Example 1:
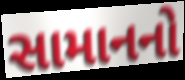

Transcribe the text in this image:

સામાનનો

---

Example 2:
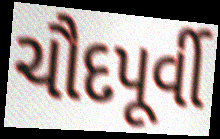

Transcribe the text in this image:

ચૌદપૂર્વી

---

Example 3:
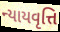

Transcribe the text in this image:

ન્યાયવૃત્તિ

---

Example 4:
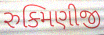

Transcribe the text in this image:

રુક્મિણીજી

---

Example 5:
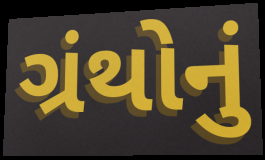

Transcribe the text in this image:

ગ્રંથોનું